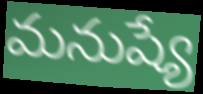
మనుష్యే